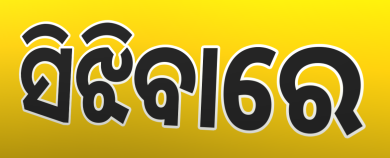
ସିଝିବାରେ